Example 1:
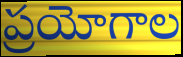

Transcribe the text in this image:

ప్రయోగాల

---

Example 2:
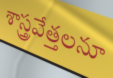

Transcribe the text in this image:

శాస్త్రవేత్తలనూ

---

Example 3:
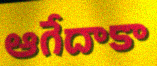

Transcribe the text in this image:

ఆగేదాకా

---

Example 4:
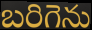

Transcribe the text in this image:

బరిగెను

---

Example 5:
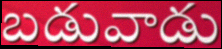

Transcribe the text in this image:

బడువాడు